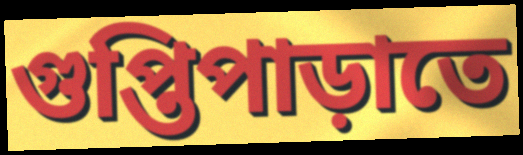
গুপ্তিপাড়াতে